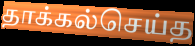
தாக்கல்செய்த